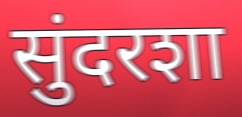
सुंदरशा